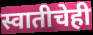
स्वातीचेही